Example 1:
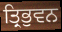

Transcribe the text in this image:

ਤ੍ਰਿਭੁਵਨ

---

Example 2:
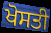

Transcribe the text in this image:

ਖੋਸਤੀ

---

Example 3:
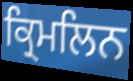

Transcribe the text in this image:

ਕ੍ਰਿਮਲਿਨ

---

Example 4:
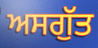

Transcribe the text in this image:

ਅਸਗੁੱਤ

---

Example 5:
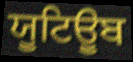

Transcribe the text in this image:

ਯੂਟਿਊਬ